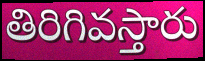
తిరిగివస్తారు